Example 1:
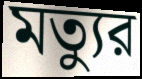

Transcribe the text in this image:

মত্যুর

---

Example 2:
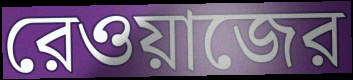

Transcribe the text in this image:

রেওয়াজের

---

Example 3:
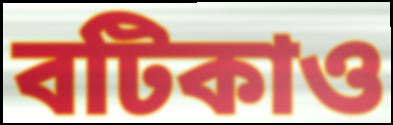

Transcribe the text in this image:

বটিকাও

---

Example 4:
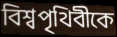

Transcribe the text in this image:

বিশ্বপৃথিবীকে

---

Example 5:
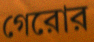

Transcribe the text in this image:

গেরোর